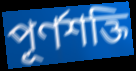
পূর্ণশক্তি